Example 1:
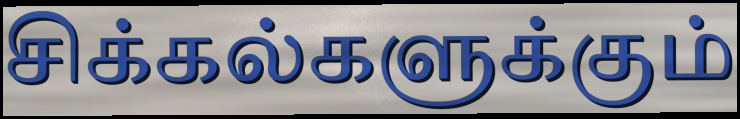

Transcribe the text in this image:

சிக்கல்களுக்கும்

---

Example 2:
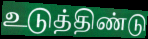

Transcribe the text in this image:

உடுத்திண்டு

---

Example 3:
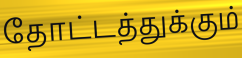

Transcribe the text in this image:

தோட்டத்துக்கும்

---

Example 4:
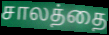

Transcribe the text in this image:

சாலத்தை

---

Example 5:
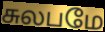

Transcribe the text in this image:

சுலபமே